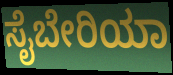
ಸೈಬೇರಿಯಾ